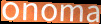
onoma